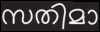
സതിമാ